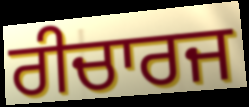
ਰੀਚਾਰਜ